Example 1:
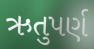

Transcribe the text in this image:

ઋતુપર્ણ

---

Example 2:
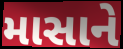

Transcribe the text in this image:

માસાને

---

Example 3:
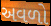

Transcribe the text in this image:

અવળો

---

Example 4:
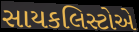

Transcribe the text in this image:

સાયકલિસ્ટોએ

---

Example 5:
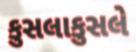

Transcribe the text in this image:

કુસલાકુસલે